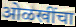
ओळखींचा